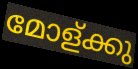
മോള്ക്കു